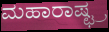
ಮಹಾರಾಷ್ಟ್ರ